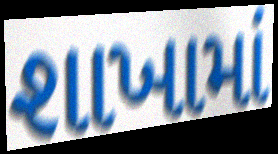
શાખામાં